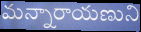
మన్నారాయణుని